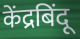
केंद्रबिंदू